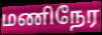
மணிநேர